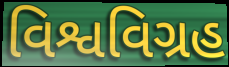
વિશ્વવિગ્રહ